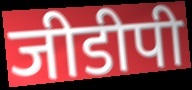
जीडीपी